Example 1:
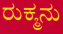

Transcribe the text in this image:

ರುಕ್ಮನು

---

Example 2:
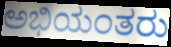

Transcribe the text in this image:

ಅಭಿಯಂತರು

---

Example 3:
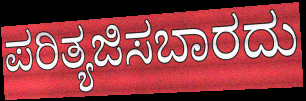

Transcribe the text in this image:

ಪರಿತ್ಯಜಿಸಬಾರದು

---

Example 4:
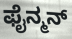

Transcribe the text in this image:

ಫೈನ್ಮನ್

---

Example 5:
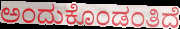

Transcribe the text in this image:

ಅಂದುಕೊಂಡಂತಿದೆ